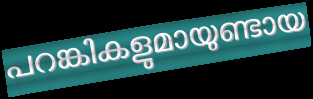
പറങ്കികളുമായുണ്ടായ